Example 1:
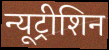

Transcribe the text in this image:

न्यूट्रीशिन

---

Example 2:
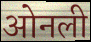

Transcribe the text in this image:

ओनली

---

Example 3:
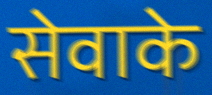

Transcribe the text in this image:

सेवाके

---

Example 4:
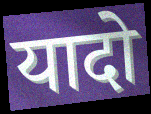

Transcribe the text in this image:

यादो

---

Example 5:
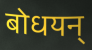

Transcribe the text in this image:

बोधयन्